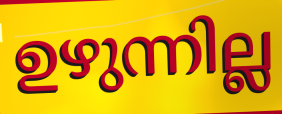
ഉഴുന്നില്ല